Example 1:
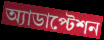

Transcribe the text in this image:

অ্যাডাপ্টেশন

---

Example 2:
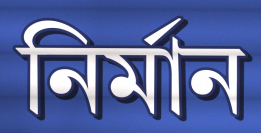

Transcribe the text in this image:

নির্মান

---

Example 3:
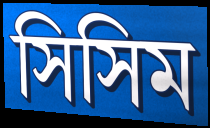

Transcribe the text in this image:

সিসিম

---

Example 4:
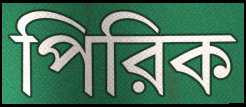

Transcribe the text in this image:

পিরিক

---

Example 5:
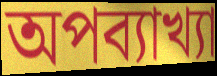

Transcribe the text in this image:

অপব্যাখ্যা